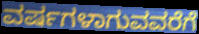
ವರ್ಷಗಳಾಗುವವರೆಗೆ